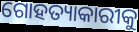
ଗୋହତ୍ୟାକାରୀକୁ